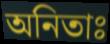
অনিতাঃ